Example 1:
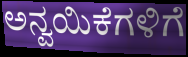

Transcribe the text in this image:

ಅನ್ವಯಿಕೆಗಳಿಗೆ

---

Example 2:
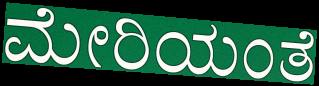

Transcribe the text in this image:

ಮೇರಿಯಂತೆ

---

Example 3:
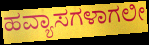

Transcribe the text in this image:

ಹವ್ಯಾಸಗಳಾಗಲೀ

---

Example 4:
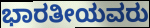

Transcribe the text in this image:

ಭಾರತೀಯವರು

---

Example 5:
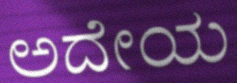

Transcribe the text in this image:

ಅದೇಯ